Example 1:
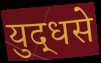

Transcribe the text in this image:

युद्धसे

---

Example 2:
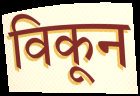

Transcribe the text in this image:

विकून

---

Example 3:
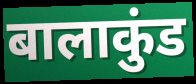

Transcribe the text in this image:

बालाकुंड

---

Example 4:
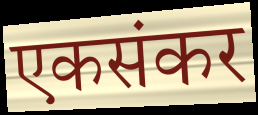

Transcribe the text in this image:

एकसंकर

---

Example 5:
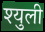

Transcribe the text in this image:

श्युली